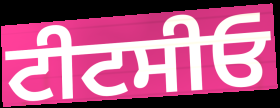
ਟੀਟਸੀਓ